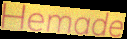
Hemade